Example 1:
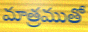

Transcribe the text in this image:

మాత్రముతో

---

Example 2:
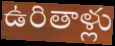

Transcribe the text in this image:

ఉరితాళ్లు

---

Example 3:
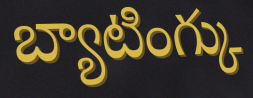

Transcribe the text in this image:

బ్యాటింగ్కు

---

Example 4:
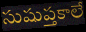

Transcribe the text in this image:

సుషుప్తకాలే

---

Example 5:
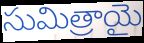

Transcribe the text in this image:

సుమిత్రాయై